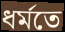
ধর্মতে